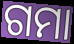
ଗମା